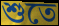
শুতে